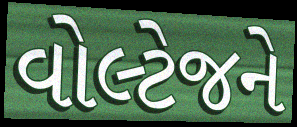
વોલ્ટેજને